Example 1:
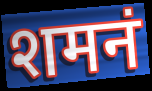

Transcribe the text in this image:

शमनं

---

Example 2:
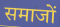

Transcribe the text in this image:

समाजों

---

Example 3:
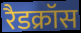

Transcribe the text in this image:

रैडक्रॉस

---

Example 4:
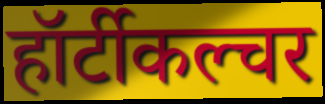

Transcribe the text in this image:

हॉर्टीकल्चर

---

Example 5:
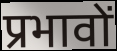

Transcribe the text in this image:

प्रभावों